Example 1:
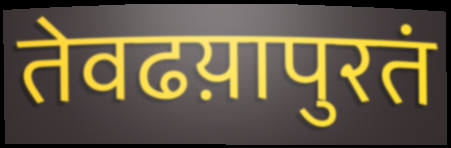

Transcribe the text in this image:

तेवढय़ापुरतं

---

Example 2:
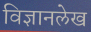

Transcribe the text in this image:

विज्ञानलेख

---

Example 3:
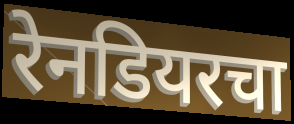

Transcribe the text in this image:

रेनडियरचा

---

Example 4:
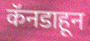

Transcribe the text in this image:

कॅनडाहून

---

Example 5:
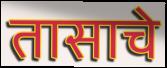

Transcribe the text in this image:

तासाचे